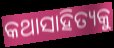
କଥାସାହିତ୍ୟକୁ